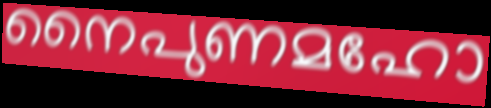
നൈപുണമഹോ